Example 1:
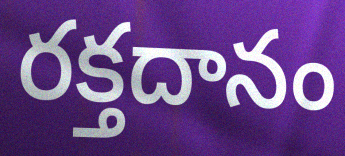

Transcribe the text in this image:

రక్తదానం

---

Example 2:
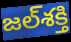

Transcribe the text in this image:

జల్‌శక్తి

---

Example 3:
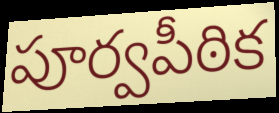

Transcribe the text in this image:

పూర్వపీఠిక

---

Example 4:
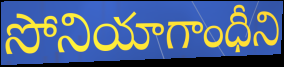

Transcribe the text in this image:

సోనియాగాంధీని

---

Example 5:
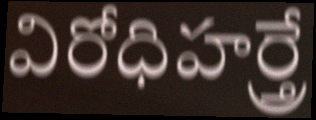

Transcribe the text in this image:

విరోధిహర్త్రే